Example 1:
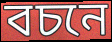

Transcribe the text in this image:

বচনে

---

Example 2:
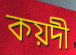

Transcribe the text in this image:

কয়দী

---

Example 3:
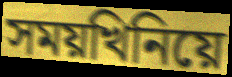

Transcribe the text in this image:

সময়খিনিয়ে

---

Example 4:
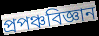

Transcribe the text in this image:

প্ৰপঞ্চবিজ্ঞান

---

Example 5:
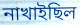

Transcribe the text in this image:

নাখাইছিল